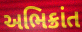
અભિક્રાંત